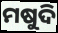
ମଷୁଦି